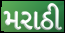
મરાઠી